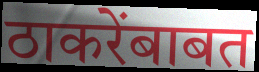
ठाकरेंबाबत